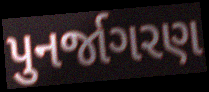
પુનર્જાગરણ